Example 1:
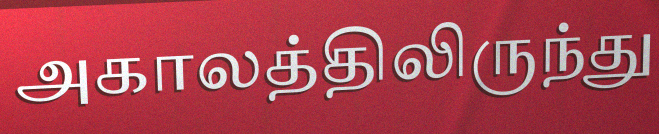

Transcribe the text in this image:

அகாலத்திலிருந்து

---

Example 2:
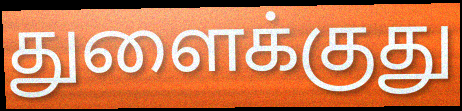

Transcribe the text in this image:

துளைக்குது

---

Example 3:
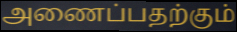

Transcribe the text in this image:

அணைப்பதற்கும்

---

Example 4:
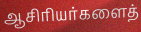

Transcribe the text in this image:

ஆசிரியர்களைத்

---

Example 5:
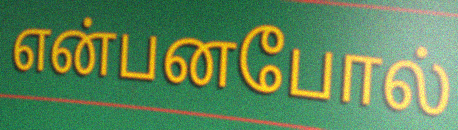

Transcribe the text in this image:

என்பனபோல்